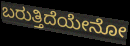
ಬರುತ್ತಿದೆಯೇನೋ